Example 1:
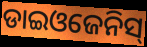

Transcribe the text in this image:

ଡାଇଓଜେନିସ୍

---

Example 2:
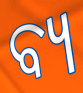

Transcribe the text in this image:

ବ୍ୟ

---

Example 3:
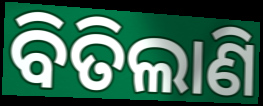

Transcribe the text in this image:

ବିତିଲାଣି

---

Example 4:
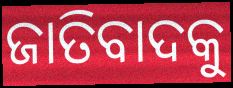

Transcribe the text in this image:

ଜାତିବାଦକୁ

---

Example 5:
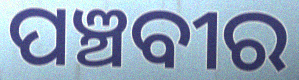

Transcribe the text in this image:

ପଞ୍ଚବୀର